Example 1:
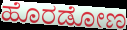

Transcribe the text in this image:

ಹೊರಡೋಣ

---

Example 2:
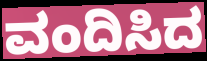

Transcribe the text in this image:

ವಂದಿಸಿದ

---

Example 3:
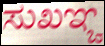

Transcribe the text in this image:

ಸುಖಞ್ಚ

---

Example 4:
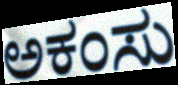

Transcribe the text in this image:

ಅಕಂಸು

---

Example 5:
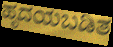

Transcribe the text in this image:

ಹೃದಯಬಡಿತ